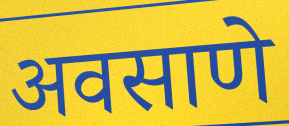
अवसाणे